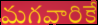
మగవారికే